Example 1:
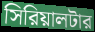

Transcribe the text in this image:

সিরিয়ালটার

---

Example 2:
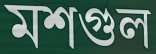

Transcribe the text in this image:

মশগুল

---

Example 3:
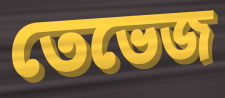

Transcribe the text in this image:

তেভেজ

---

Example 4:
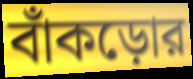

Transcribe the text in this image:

বাঁকড়োর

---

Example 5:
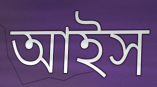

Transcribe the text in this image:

আইস